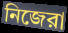
নিজেরা